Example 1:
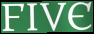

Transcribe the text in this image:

FIVE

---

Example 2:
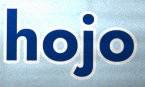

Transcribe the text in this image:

hojo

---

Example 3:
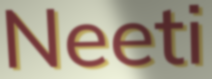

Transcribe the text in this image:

Neeti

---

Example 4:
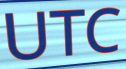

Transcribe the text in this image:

UTC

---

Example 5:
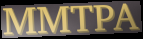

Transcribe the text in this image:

MMTPA